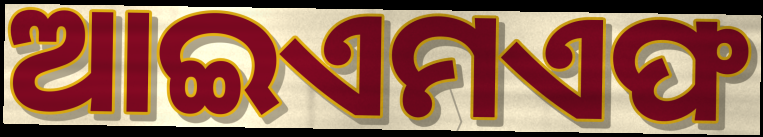
ଆଇଏମଏଫ